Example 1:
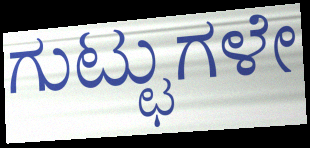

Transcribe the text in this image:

ಗುಟ್ಟುಗಳೇ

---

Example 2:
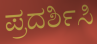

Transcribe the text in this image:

ಪ್ರದರ್ಶಿಸಿ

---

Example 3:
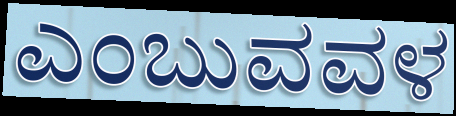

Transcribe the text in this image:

ಎಂಬುವವಳ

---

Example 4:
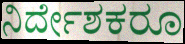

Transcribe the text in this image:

ನಿರ್ದೇಶಕರೂ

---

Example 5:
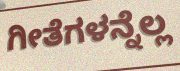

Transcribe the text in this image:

ಗೀತೆಗಳನ್ನೆಲ್ಲ